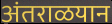
अंतराळयान